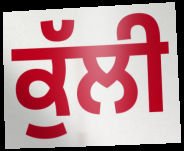
ਕੁੱਲੀ